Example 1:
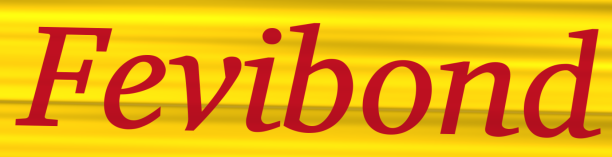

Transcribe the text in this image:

Fevibond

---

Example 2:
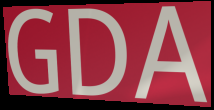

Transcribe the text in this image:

GDA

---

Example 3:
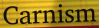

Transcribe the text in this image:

Carnism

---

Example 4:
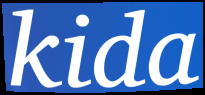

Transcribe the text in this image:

kida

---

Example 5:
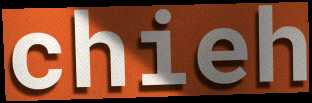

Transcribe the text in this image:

chieh